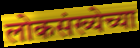
लोकसंख्‍येच्‍या